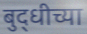
बुद्धीच्या